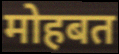
मोहबत